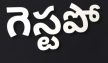
గెస్టపో